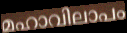
മഹാവിലാപം